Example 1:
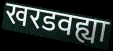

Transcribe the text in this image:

खरडवह्या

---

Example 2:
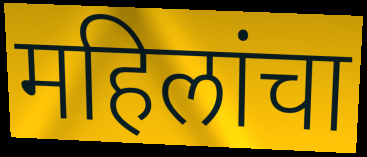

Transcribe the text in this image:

महिलांचा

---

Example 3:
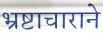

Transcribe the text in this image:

भ्रष्टाचाराने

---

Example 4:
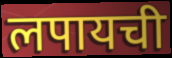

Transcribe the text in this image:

लपायची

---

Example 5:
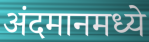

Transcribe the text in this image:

अंदमानमध्ये